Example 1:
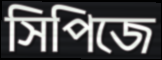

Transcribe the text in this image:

সিপিজে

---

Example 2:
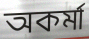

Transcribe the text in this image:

অকর্মা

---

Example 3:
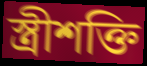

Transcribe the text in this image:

স্ত্রীশক্তি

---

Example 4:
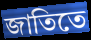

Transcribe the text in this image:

জাতিতে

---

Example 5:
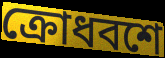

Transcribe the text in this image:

ক্রোধবশে